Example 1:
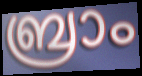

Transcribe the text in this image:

ബ്രാം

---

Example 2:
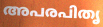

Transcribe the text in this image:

അപരപിതൃ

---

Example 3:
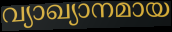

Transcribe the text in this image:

വ്യാഖ്യാനമായ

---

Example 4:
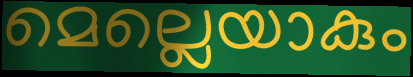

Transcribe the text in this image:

മെല്ലെയാകും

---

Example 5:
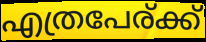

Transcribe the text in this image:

എത്രപേര്ക്ക്